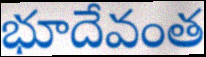
భూదేవంత